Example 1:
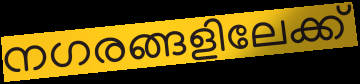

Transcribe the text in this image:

നഗരങ്ങളിലേക്ക്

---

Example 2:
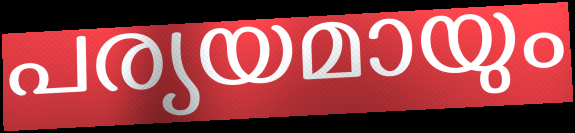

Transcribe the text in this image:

പര്യയമായും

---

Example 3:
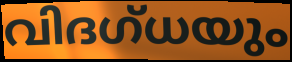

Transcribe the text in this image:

വിദഗ്ധയും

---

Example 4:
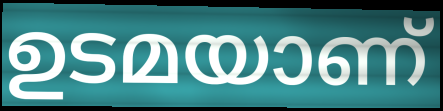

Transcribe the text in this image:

ഉടമയാണ്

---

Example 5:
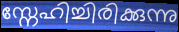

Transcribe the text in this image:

സ്നേഹിച്ചിരിക്കുന്നു